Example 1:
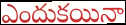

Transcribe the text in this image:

ఎందుకయినా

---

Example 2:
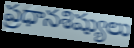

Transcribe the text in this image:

ప్రధానశిష్యులు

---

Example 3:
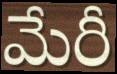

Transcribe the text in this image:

మేరీ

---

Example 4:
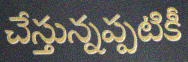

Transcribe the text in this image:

చేస్తున్నప్పటికీ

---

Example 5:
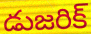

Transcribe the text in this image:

డుజరిక్